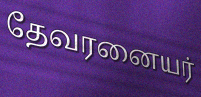
தேவரனையர்